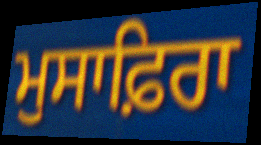
ਮੁਸਾਫ਼ਿਰਾ